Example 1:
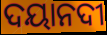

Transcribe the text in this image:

ଦୟାନଦୀ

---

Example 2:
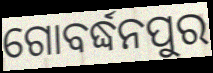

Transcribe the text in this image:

ଗୋବର୍ଦ୍ଧନପୁର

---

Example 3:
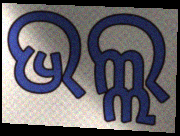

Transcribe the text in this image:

ଭଲ୍ଲ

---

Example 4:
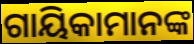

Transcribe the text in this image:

ଗାୟିକାମାନଙ୍କ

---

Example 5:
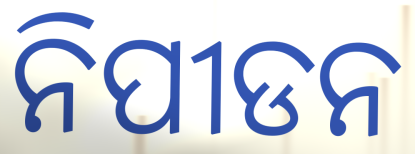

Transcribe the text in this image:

ନିପୀଡନ